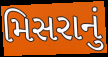
મિસરાનું